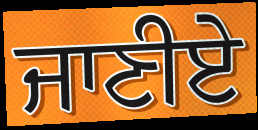
ਜਾਣੀਏ